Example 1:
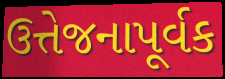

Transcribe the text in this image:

ઉત્તેજનાપૂર્વક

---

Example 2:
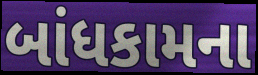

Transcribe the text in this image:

બાંધકામના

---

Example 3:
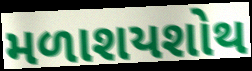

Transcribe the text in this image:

મળાશયશોથ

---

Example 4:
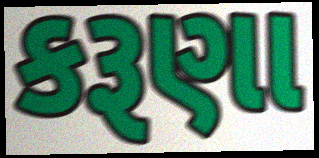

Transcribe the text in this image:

કરૂણા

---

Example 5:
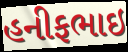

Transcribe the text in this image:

હનીફભાઇ